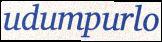
udumpurlo